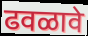
ढवळावे